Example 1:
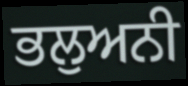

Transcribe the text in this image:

ਭਲੁਅਨੀ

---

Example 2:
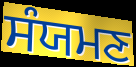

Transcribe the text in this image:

ਸੰਯਮਣ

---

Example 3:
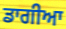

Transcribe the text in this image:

ਡਾਗੀਆ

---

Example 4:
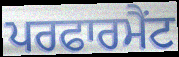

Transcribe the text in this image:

ਪਰਫਾਰਮੈਂਟ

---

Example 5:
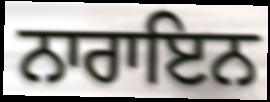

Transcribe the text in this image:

ਨਾਰਾਇਨ